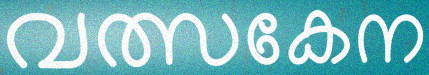
വത്സകേന